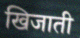
खिजाती